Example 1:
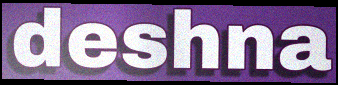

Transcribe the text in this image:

deshna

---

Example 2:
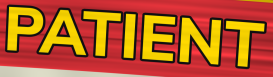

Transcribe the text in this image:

PATIENT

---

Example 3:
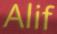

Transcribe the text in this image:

Alif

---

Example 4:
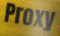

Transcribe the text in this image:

Proxy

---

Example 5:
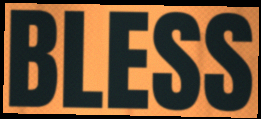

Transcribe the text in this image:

BLESS